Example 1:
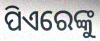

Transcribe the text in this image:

ପିଏରେଙ୍କୁ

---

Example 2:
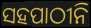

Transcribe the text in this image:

ସହପାଠୀନି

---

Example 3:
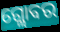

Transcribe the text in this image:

ଗ୍ଲୋବର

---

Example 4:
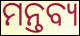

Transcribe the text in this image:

ମନ୍ତବ୍ଯ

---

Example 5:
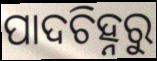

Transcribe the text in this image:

ପାଦଚିହ୍ନରୁ